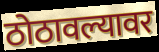
ठोठावल्यावर